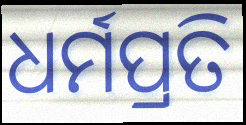
ଧର୍ମପ୍ରତି